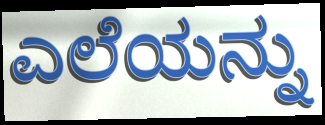
ಎಲೆಯನ್ನು